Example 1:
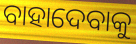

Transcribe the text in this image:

ବାହାଦେବାକୁ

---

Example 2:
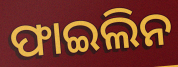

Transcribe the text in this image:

ଫାଇଲିନ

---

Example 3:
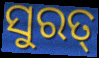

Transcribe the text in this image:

ସୁରତ୍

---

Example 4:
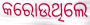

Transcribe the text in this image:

କରୋଉଥିଲେ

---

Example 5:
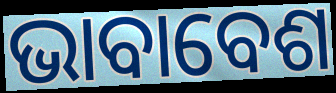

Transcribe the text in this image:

ଭାବାବେଶ